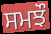
ਸਮਝੌ